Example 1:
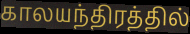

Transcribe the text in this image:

காலயந்திரத்தில்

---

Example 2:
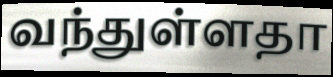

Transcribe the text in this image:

வந்துள்ளதா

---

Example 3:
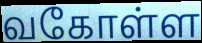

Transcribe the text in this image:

வகோள்ள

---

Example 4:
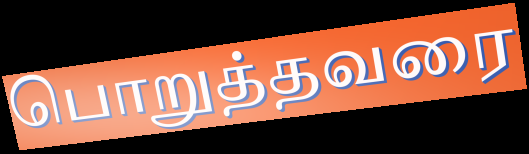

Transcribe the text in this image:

பொறுத்தவரை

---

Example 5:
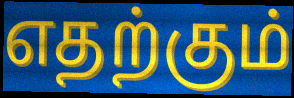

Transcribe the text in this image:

எதற்கும்